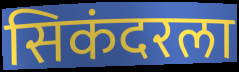
सिकंदरला